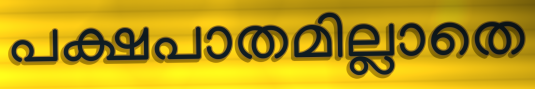
പക്ഷപാതമില്ലാതെ